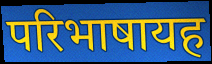
परिभाषायह